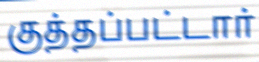
குத்தப்பட்டார்